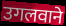
उगलवाने